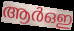
ആർഒഇ